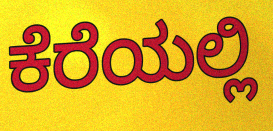
ಕೆರೆಯಲ್ಲಿ